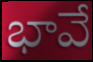
భావే